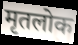
मृतलोक